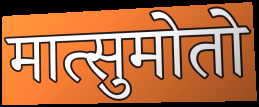
मात्सुमोतो